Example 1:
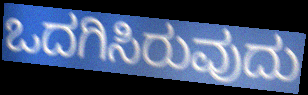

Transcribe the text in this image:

ಒದಗಿಸಿರುವುದು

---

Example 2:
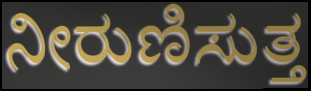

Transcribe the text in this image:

ನೀರುಣಿಸುತ್ತ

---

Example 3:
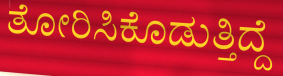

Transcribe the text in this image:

ತೋರಿಸಿಕೊಡುತ್ತಿದ್ದೆ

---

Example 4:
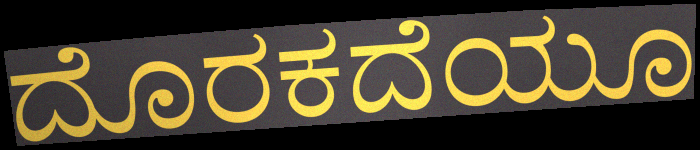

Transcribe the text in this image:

ದೊರಕದೆಯೂ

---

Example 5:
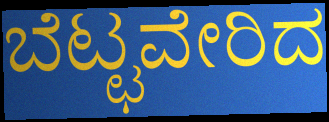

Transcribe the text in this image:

ಬೆಟ್ಟವೇರಿದ